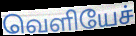
வெளியேச்